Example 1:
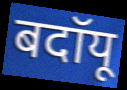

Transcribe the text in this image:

बदॉयू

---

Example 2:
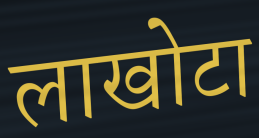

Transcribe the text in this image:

लाखोटा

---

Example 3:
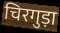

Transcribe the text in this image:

चिरगुड़ा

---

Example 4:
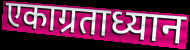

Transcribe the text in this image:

एकाग्रताध्यान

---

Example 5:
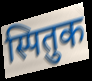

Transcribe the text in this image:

स्पितुक